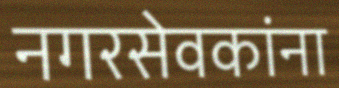
नगरसेवकांना